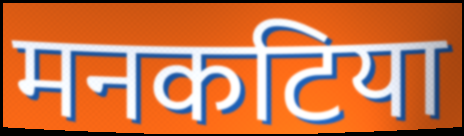
मनकटिया